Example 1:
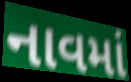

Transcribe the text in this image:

નાવમાં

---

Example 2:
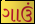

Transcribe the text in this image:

ગાઉં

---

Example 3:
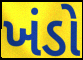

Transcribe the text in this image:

ખંડો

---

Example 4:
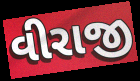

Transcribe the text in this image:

વીરાજી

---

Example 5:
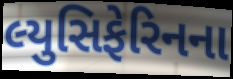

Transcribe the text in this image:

લ્યુસિફેરિનના